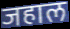
जहाल